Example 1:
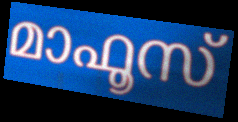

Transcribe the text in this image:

മാഫൂസ്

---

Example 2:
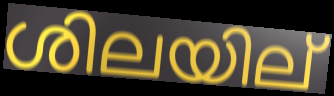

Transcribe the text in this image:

ശിലയില്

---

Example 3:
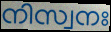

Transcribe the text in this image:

നിസ്വനഃ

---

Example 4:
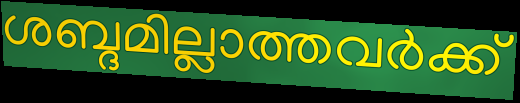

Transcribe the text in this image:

ശബ്ദമില്ലാത്തവർക്ക്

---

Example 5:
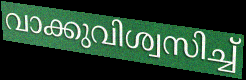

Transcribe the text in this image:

വാക്കുവിശ്വസിച്ച്